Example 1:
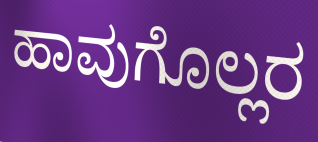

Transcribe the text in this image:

ಹಾವುಗೊಲ್ಲರ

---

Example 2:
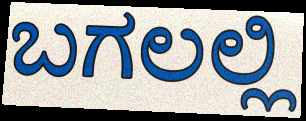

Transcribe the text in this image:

ಬಗಲಲ್ಲಿ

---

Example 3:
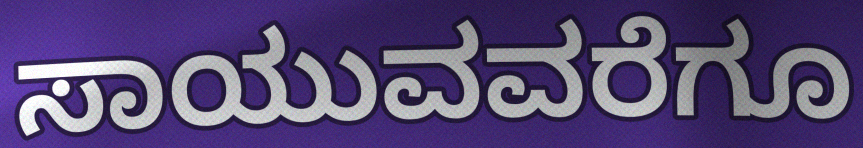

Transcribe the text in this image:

ಸಾಯುವವರೆಗೂ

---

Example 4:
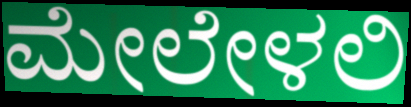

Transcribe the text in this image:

ಮೇಲೇಳಲಿ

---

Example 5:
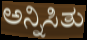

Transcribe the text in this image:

ಅನ್ನಿಸಿತು